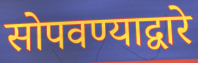
सोपवण्याद्वारे